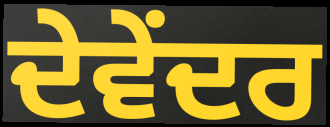
ਦੇਵੇਂਦਰ